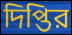
দিপ্তির